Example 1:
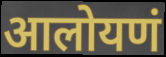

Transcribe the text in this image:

आलोयणं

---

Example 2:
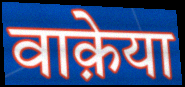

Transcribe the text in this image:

वाक़ेया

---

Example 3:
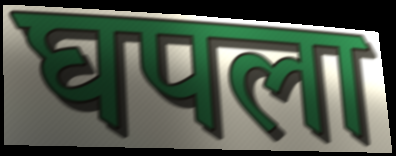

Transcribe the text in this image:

घपला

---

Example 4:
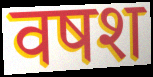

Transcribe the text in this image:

वषश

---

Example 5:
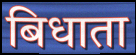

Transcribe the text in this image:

बिधाता